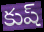
కుష్